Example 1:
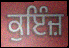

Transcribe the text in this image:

ਕੁਇੰਜ਼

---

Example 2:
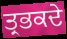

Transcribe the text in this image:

ਤ੍ਰਭਕਦੇ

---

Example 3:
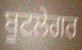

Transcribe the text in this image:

ਬੂਟਲੇਗਰ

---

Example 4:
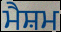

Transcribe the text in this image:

ਮੈਸ਼ਮ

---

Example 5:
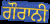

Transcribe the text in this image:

ਗੌਰਾਨੀ